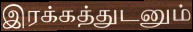
இரக்கத்துடனும்